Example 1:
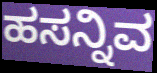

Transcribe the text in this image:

ಹಸನ್ನಿವ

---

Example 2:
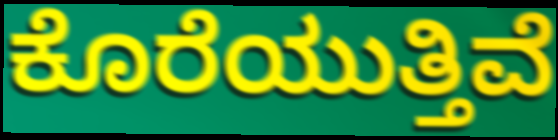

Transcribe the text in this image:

ಕೊರೆಯುತ್ತಿವೆ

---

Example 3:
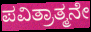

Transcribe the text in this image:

ಪವಿತ್ರಾತ್ಮನೇ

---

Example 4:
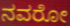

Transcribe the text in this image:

ನವರೋ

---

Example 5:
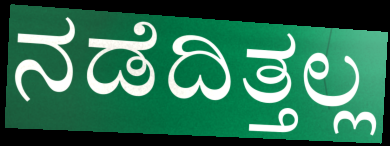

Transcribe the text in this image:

ನಡೆದಿತ್ತಲ್ಲ